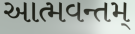
આત્મવન્તમ્